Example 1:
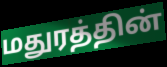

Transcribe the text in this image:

மதுரத்தின்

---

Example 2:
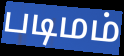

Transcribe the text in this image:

படிமம்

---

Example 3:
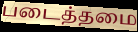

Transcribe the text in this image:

படைத்தமை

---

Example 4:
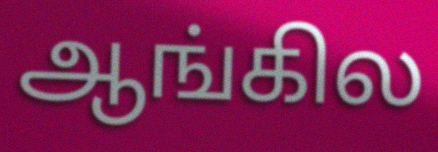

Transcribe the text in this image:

ஆங்கில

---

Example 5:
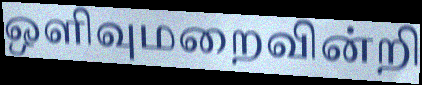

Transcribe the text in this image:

ஒளிவுமறைவின்றி